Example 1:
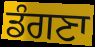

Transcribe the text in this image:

ਡੰਗਣਾ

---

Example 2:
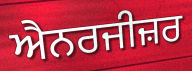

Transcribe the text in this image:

ਐਨਰਜੀਜ਼ਰ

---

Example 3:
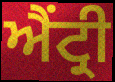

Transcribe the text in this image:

ਐਂਟ੍ਰੀ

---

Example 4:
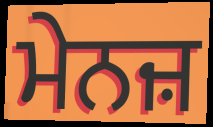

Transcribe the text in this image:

ਮੇਨਜ਼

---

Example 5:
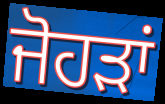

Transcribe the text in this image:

ਜੋਹੜਾਂ